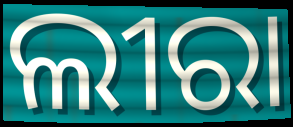
ଲୀରା